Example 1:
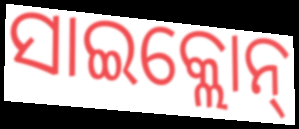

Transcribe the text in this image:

ସାଇକ୍ଲୋନ୍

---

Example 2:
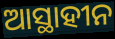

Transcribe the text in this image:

ଆସ୍ଥାହୀନ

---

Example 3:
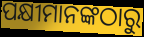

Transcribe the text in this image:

ପକ୍ଷୀମାନଙ୍କଠାରୁ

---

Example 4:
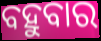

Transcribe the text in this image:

ବହୁବାର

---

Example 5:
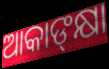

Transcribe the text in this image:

ଆକାଙ୍‌କ୍ଷା